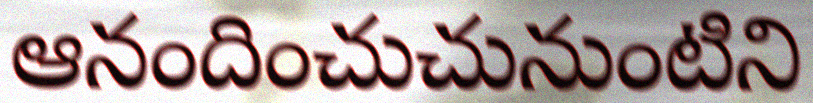
ఆనందించుచునుంటిని